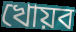
খোয়ব